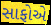
સાફોએ